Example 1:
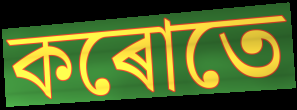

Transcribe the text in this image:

কৰোতে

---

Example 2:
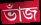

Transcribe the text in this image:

ভাঁজ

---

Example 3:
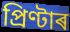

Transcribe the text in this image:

প্ৰিণ্টাৰ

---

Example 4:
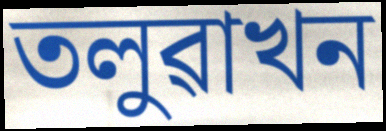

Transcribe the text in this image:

তলুৱাখন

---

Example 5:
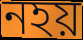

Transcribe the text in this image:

নহয়